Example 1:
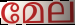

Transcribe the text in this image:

മേല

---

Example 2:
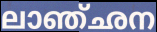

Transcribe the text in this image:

ലാഞ്ഛന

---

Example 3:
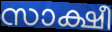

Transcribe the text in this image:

സാക്ഷീ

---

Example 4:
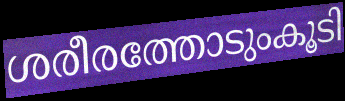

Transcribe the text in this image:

ശരീരത്തോടുംകൂടി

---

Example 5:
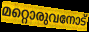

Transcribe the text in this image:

മറ്റൊരുവനോട്